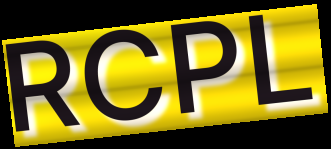
RCPL